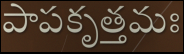
పాపకృత్తమః